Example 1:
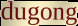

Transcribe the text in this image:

dugong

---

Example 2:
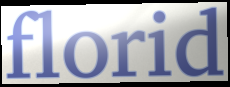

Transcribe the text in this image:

florid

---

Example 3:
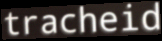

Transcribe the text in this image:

tracheid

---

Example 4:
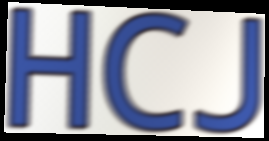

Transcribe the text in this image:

HCJ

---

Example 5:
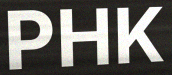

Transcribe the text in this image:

PHK